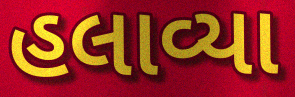
હલાવ્યા